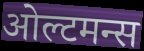
ओल्टमन्स